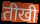
तीखी